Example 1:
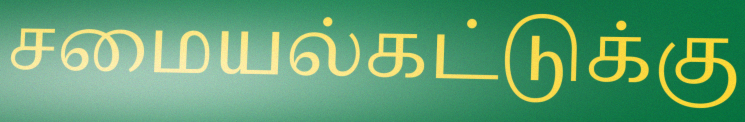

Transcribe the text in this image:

சமையல்கட்டுக்கு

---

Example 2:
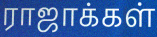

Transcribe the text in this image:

ராஜாக்கள்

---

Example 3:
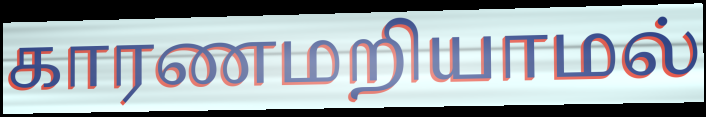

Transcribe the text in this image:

காரணமறியாமல்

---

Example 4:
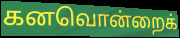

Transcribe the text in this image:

கனவொன்றைக்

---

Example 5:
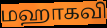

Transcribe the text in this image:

மஹாகவி